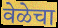
वेळेचा